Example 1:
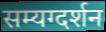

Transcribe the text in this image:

सम्‍यग्‍दर्शन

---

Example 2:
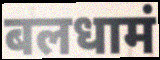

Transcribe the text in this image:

बलधामं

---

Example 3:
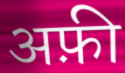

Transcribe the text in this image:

अफ़ी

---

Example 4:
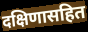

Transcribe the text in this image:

दक्षिणासहित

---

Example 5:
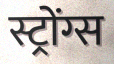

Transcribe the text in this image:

स्ट्रोंग्स